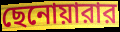
ছেনোয়ারার